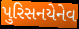
પુરિસનયેનેવ